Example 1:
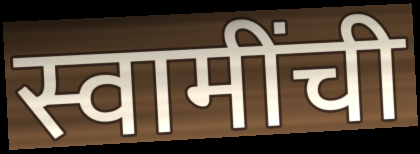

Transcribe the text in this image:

स्वामींची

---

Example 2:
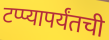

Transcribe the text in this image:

टप्प्यापर्यंतची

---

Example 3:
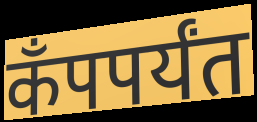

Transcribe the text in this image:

कँपपर्यंत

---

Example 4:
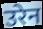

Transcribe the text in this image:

उरेन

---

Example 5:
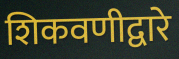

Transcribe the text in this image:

शिकवणीद्वारे